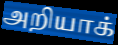
அறியாக்